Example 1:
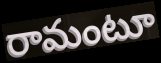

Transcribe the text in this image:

రామంటూ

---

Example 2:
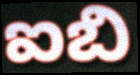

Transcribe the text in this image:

ఐబి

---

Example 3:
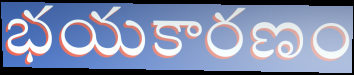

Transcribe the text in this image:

భయకారణం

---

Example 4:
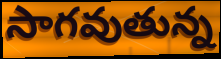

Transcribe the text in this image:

సాగవుతున్న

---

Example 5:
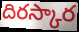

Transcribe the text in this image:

దిరస్కార